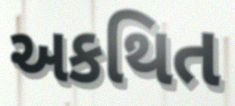
અકથિત